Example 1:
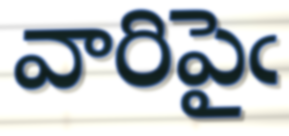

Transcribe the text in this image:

వారిపైఁ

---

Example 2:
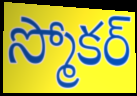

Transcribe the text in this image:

స్మోకర్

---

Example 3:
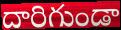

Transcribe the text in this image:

దారిగుండా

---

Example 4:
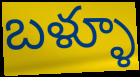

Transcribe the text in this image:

బళ్ళూ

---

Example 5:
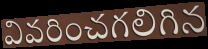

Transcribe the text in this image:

వివరించగలిగిన